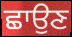
ਛਾਉਣ